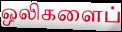
ஒலிகளைப்